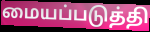
மையப்படுத்தி